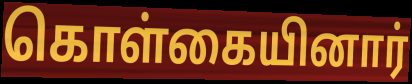
கொள்கையினார்